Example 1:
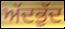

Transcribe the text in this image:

ਅੱਦਭੁੱਦ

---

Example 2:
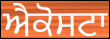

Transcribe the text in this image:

ਐਕੋਸਟਾ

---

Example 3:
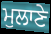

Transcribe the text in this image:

ਮੁਲਾਣੇ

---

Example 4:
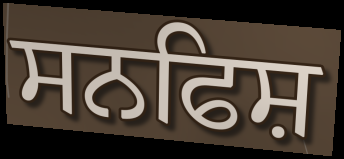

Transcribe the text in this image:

ਸਨਫਿਸ਼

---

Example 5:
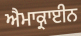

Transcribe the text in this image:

ਐਮਾਕ੍ਰਾਈਨ